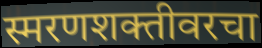
स्मरणशक्तीवरचा